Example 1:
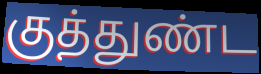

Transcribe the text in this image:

குத்துண்ட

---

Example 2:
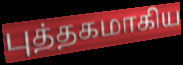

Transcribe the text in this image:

புத்தகமாகிய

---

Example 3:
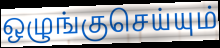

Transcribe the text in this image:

ஒழுங்குசெய்யும்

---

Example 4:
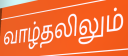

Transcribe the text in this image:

வாழ்தலிலும்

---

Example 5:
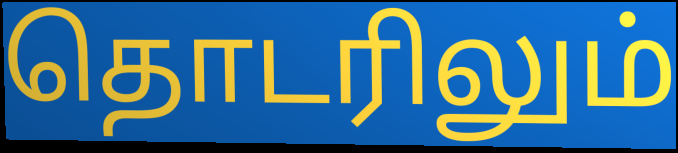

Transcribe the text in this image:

தொடரிலும்